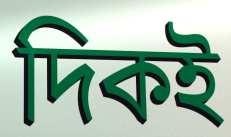
দিকই